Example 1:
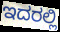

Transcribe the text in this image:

ಇದರಲ್ಲಿ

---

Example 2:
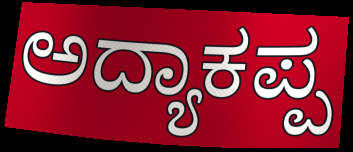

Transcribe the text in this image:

ಅದ್ಯಾಕಪ್ಪ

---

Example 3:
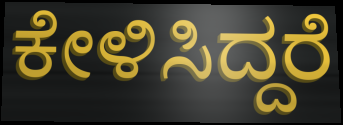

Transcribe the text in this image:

ಕೇಳಿಸಿದ್ದರೆ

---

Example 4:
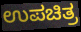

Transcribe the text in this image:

ಉಪಚಿತ್ರ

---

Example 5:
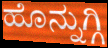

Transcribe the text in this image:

ಹೊನ್ನುಗ್ಗಿ